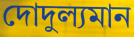
দোদুল্যমান